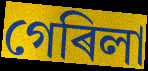
গেৰিলা